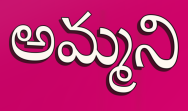
అమ్మని